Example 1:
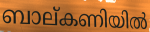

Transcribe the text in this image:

ബാല്കണിയിൽ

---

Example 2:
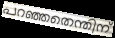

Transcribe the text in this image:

പറഞ്ഞതെന്തിന്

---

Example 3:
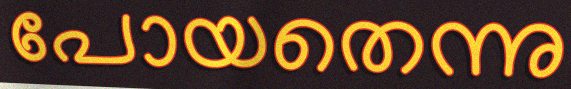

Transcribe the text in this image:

പോയതെന്നു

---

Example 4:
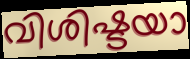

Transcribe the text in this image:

വിശിഷ്ടയാ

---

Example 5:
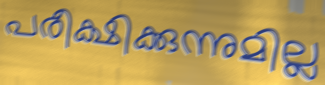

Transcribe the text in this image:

പരീക്ഷിക്കുന്നുമില്ല